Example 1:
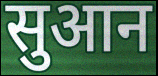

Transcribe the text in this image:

सुआन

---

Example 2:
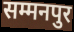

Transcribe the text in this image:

सम्मनपुर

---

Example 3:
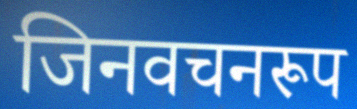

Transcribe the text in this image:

जिनवचनरूप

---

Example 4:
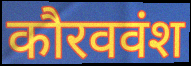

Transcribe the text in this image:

कौरववंश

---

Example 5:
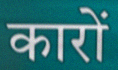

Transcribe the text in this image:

कारों